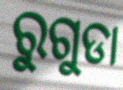
ରୁଗୁଡା